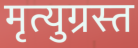
मृत्युग्रस्त